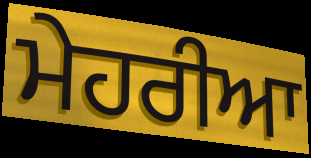
ਮੇਹਰੀਆ